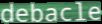
debacle